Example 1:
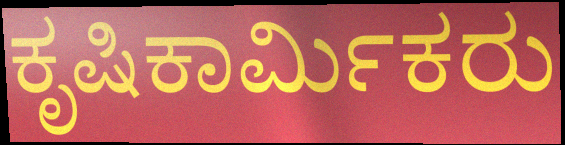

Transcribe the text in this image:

ಕೃಷಿಕಾರ್ಮಿಕರು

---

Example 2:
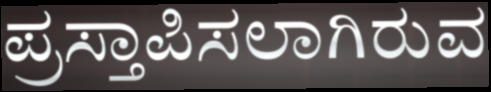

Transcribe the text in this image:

ಪ್ರಸ್ತಾಪಿಸಲಾಗಿರುವ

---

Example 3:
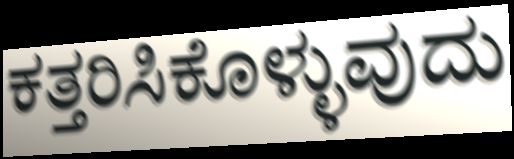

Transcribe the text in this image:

ಕತ್ತರಿಸಿಕೊಳ್ಳುವುದು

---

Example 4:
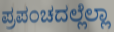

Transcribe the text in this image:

ಪ್ರಪಂಚದಲ್ಲೆಲ್ಲಾ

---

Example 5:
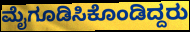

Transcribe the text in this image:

ಮೈಗೂಡಿಸಿಕೊಂಡಿದ್ದರು